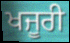
ਖਜੂਰੀ